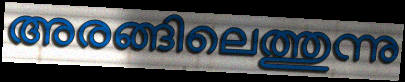
അരങ്ങിലെത്തുന്നു